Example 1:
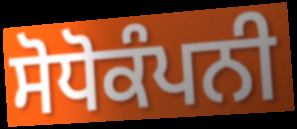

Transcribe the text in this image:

ਸੋਧੋਕੰਪਨੀ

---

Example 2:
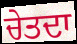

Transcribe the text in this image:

ਚੇਤਦਾ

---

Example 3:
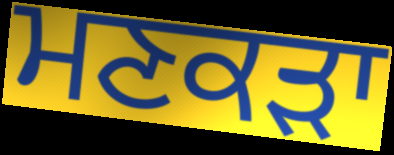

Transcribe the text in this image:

ਮਣਕੜਾ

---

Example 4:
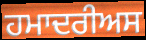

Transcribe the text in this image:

ਹਮਾਦਰੀਅਸ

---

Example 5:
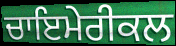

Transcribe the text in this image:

ਚਾਇਮੇਰੀਕਲ